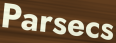
Parsecs